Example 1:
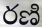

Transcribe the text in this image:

రణి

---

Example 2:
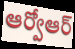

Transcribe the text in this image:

ఆర్వోఆర్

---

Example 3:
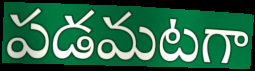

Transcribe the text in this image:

పడమటగా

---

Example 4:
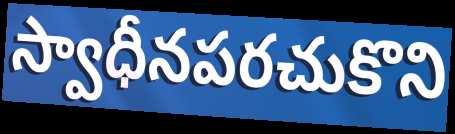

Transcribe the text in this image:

స్వాధీనపరచుకొని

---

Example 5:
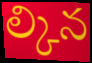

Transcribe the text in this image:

ల్కిన